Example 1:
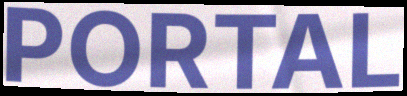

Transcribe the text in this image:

PORTAL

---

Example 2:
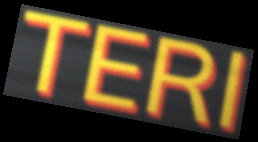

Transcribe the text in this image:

TERI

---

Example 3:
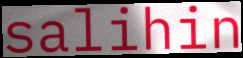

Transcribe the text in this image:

salihin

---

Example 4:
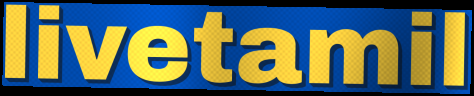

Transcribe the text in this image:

livetamil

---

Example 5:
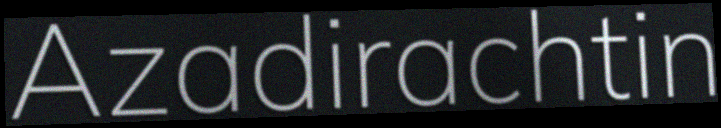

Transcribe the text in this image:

Azadirachtin